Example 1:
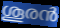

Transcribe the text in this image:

ശൂരൻ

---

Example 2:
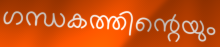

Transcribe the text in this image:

ഗന്ധകത്തിന്റെയും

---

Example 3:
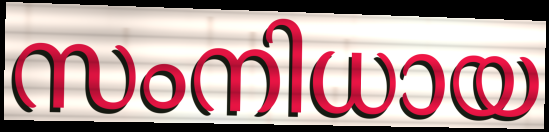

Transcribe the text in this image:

സംനിധായ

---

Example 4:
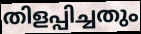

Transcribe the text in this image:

തിളപ്പിച്ചതും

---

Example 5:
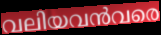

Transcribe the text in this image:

വലിയവൻവരെ